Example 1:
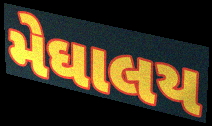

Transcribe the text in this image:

મેઘાલય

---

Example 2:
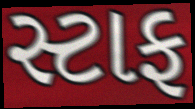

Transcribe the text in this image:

સ્ટાફ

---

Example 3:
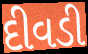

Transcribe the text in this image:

દીવડી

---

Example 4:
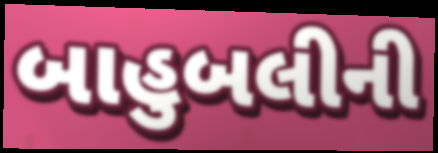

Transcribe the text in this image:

બાહુબલીની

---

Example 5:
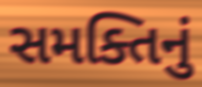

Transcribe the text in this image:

સમક્તિનું